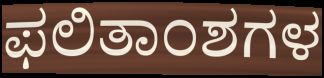
ಫಲಿತಾಂಶಗಳ